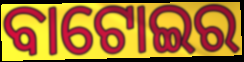
ବାଟୋଇର